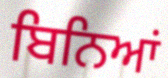
ਬਿਨਿਆਂ